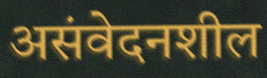
असंवेदनशील